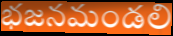
భజనమండలి